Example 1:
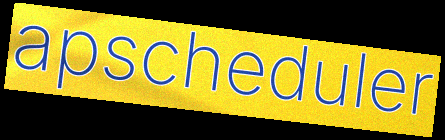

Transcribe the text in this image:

apscheduler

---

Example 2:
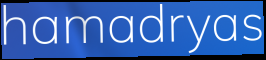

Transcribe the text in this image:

hamadryas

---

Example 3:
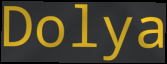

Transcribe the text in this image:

Dolya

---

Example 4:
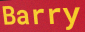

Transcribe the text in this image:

Barry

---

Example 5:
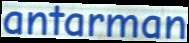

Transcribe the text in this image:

antarman